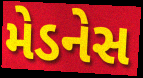
મેડનેસ